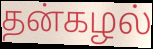
தன்கழல்